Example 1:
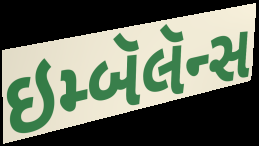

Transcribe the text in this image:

ઇમ્બૅલૅન્સ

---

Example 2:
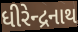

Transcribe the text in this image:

ધીરેન્દ્રનાથ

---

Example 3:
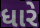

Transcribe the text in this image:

ધારે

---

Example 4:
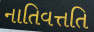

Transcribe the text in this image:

નાતિવત્તતિ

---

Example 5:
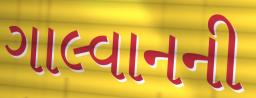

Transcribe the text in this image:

ગાલ્વાનની